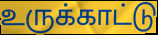
உருக்காட்டு